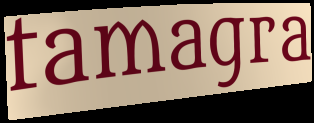
tamagra